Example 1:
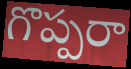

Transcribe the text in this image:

గొప్పరా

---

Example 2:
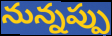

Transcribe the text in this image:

నున్నప్పు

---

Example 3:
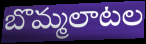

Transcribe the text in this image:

బొమ్మలాటల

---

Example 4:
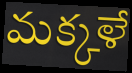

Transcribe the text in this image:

మక్కళే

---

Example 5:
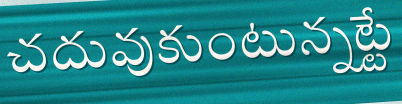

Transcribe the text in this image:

చదువుకుంటున్నట్టే